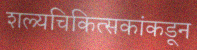
शल्यचिकित्सकांकडून